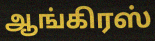
ஆங்கிரஸ்